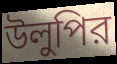
উলুপির